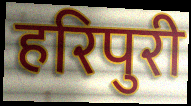
हरिपुरी